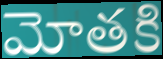
మోతకి